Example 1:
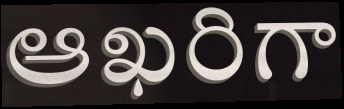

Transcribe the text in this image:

ఆఖరిగా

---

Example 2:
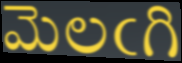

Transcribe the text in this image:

మెలఁగి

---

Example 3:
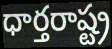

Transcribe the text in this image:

ధార్తరాష్ట్ర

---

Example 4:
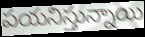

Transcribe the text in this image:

పయనిస్తున్నాయి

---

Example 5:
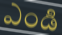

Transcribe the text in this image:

ఎండి